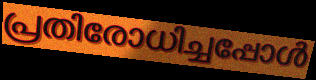
പ്രതിരോധിച്ചപ്പോൾ